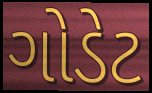
ગોડેટ